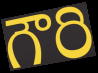
గౌరి